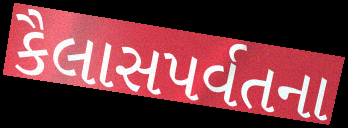
કૈલાસપર્વતના